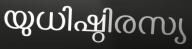
യുധിഷ്ഠിരസ്യ